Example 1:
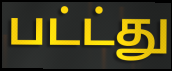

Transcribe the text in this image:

பட்ட்து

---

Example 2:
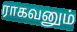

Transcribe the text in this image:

ராகவனும்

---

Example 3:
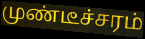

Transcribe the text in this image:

முண்டீச்சரம்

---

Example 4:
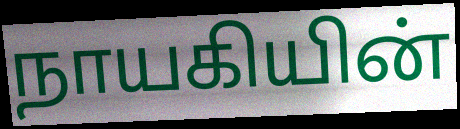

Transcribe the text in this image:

நாயகியின்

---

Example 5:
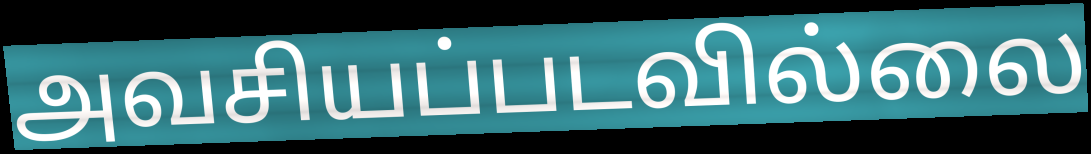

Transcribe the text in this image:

அவசியப்படவில்லை